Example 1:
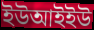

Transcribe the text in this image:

ইউআইইউ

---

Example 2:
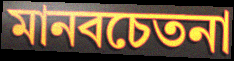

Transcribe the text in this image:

মানবচেতনা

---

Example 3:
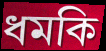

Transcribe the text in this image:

ধমকি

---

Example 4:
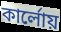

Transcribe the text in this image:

কার্লোয়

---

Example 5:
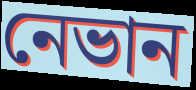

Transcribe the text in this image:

নেভান